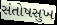
સંતોષસુખ